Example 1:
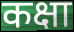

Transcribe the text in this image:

कक्षा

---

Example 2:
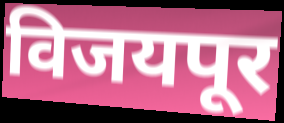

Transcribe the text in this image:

विजयपूर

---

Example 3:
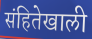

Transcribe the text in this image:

संहितेखाली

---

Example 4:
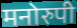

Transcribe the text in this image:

मनोरुपी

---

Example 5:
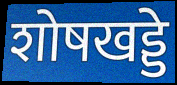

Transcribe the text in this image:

शोषखड्डे